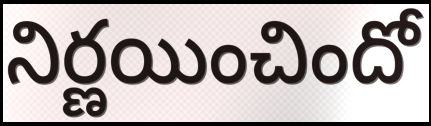
నిర్ణయించిందో